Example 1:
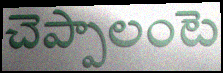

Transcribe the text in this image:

చెప్పాలంటె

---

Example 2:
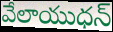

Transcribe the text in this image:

వేలాయుధన్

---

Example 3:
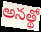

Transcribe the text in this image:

అనత్థో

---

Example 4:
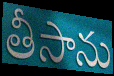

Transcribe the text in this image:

తీసాను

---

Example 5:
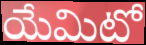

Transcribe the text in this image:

యేమిటో